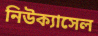
নিউক্যাসেল